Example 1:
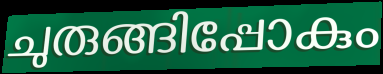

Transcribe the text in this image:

ചുരുങ്ങിപ്പോകും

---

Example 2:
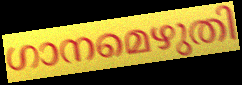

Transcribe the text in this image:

ഗാനമെഴുതി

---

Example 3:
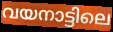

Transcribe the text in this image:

വയനാട്ടിലെ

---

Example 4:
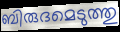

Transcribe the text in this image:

ബിരുദമെടുത്തു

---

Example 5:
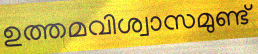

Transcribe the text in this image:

ഉത്തമവിശ്വാസമുണ്ട്